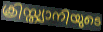
ക്രിസ്ത്യാനിയുടെ